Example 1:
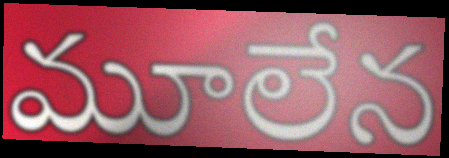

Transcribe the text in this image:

మూలేన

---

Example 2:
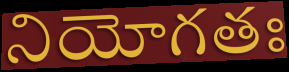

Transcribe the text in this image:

నియోగతః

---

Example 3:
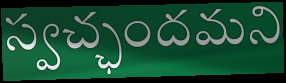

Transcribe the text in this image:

స్వచ్ఛందమని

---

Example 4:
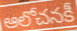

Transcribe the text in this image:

ఆలోచనకీ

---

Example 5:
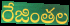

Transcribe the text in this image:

రేజింతల